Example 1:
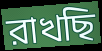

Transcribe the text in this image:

রাখছি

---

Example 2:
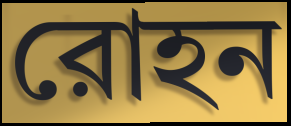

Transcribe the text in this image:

রোহন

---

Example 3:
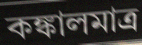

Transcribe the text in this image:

কঙ্কালমাত্র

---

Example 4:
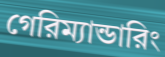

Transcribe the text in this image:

গেরিম্যান্ডারিং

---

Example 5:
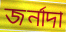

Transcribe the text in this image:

জর্নাদা